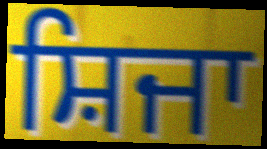
ਸ਼ਿਜਾ